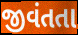
જીવંતતા